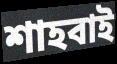
শাহবাই